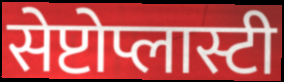
सेप्टोप्लास्टी